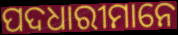
ପଦଧାରୀମାନେ